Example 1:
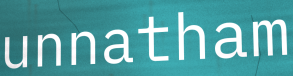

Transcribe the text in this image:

unnatham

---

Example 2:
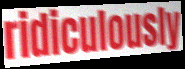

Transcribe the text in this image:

ridiculously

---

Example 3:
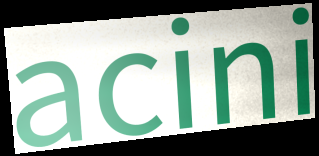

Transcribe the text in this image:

acini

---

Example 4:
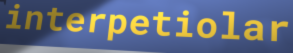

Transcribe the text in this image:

interpetiolar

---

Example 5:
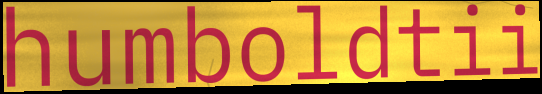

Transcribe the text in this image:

humboldtii